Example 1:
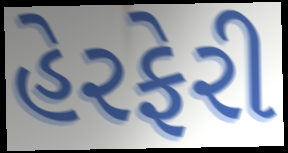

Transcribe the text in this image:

હેરફેરી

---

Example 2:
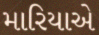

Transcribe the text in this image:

મારિયાએ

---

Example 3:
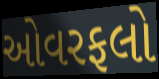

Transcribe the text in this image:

ઓવરફલો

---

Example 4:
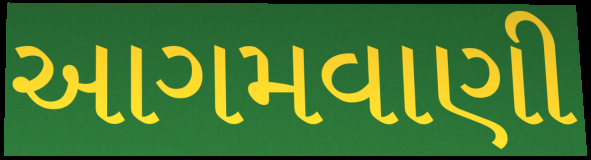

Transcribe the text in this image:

આગમવાણી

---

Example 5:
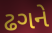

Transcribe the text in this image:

ઢગને